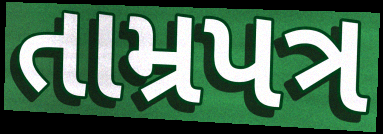
તામ્રપત્ર